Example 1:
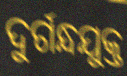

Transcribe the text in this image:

ଦୁର୍ଗନ୍ଧଯୁକ୍ତ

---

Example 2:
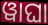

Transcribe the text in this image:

ୱାଘା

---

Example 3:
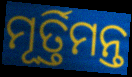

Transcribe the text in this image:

ମୂର୍ତ୍ତିମନ୍ତ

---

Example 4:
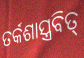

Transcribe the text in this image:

ତର୍କଶାସ୍ତ୍ରବିତ୍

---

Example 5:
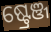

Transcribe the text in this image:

ଷ୍ଟ୍ରେଞ୍ଜ